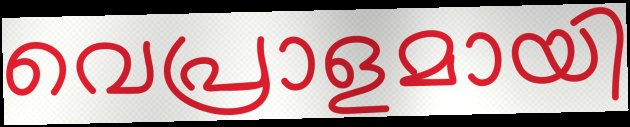
വെപ്രാളമായി